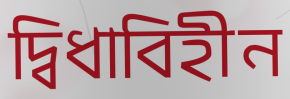
দ্বিধাবিহীন